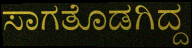
ಸಾಗತೊಡಗಿದ್ದ